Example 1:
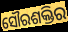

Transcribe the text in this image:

ସୌରଶକ୍ତିର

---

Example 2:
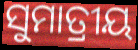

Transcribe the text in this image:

ସୁମାତ୍ରୀୟ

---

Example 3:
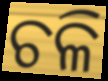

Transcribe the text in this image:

ଚଳି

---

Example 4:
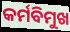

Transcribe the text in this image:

କର୍ମବିମୁଖ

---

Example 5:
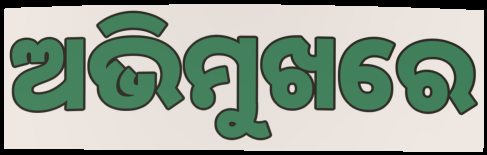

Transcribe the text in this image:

ଅଭିମୁଖରେ